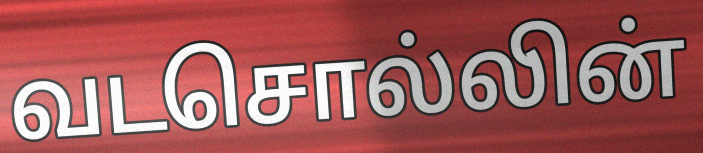
வடசொல்லின்